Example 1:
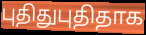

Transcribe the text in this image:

புதிதுபுதிதாக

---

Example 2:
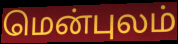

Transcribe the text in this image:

மென்புலம்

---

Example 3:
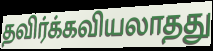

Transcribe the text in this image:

தவிர்க்கவியலாதது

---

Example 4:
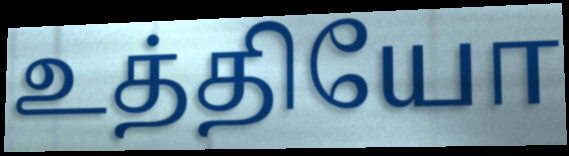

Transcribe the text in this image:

உத்தியோ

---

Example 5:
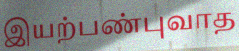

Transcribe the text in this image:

இயற்பண்புவாத